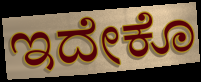
ಇದೇಕೊ